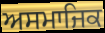
ਅਸਮਾਜਿਕ